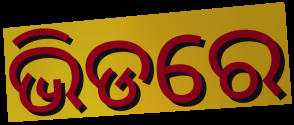
ଭିଡରେ